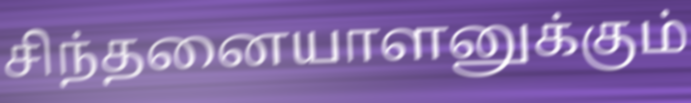
சிந்தனையாளனுக்கும்